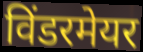
विंडरमेयर